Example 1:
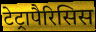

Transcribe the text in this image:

टेट्रापैरिसिस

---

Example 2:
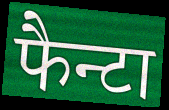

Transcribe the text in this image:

फैन्टा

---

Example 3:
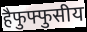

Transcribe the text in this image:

हैफुफ्फुसीय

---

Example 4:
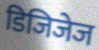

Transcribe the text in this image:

डिजिजेज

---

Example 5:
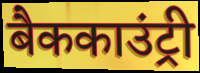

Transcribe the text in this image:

बैककाउंट्री